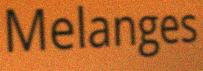
Melanges